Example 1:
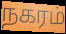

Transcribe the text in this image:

நகரம்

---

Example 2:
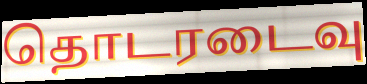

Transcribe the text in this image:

தொடரடைவு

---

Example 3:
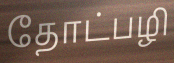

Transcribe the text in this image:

தோட்பழி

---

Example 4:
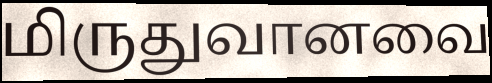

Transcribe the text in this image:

மிருதுவானவை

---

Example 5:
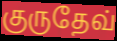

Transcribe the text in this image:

குருதேவ்